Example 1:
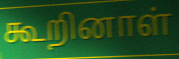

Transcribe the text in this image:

கூறினாள்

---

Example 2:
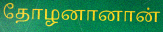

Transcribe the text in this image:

தோழனானான்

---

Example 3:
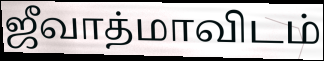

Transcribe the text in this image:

ஜீவாத்மாவிடம்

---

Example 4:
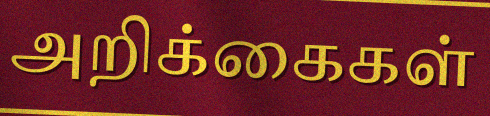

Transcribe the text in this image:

அறிக்கைகள்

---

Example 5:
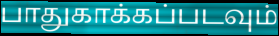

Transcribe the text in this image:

பாதுகாக்கப்படவும்